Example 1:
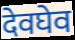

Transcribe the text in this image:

देवघेव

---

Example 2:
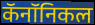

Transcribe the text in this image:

कॅनॉनिकल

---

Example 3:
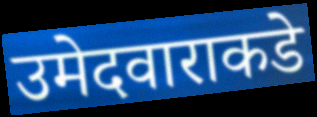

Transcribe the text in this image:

उमेदवाराकडे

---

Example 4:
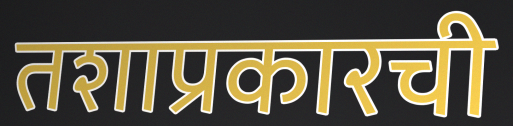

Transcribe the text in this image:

तशाप्रकारची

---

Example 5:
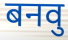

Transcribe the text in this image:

बनवु